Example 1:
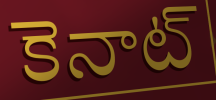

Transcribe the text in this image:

కెనాట్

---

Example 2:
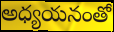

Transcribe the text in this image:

అధ్యయనంతో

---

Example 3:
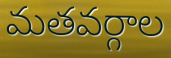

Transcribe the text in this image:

మతవర్గాల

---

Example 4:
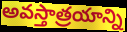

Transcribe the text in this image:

అవస్తాత్రయాన్ని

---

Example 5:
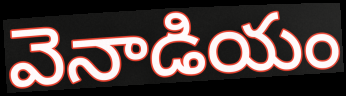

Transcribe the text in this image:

వెనాడియం